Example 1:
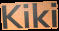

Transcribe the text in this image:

Kiki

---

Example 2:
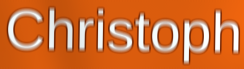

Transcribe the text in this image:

Christoph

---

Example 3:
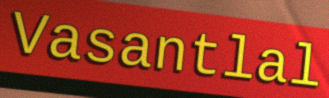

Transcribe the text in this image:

Vasantlal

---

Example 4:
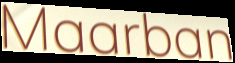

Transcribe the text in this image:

Maarban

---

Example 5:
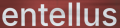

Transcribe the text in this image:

entellus